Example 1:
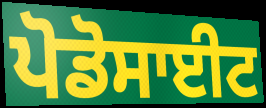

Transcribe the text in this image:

ਪੋਡੋਸਾਈਟ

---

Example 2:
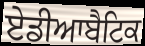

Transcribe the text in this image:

ਏਡੀਆਬੈਟਿਕ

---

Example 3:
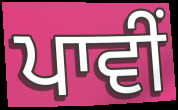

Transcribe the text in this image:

ਪਾਵੀਂ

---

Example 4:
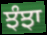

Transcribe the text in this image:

ਝੰਝਾ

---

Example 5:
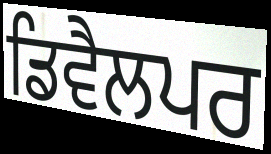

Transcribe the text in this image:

ਡਿਵੈਲਪਰ